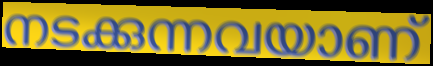
നടക്കുന്നവയാണ്